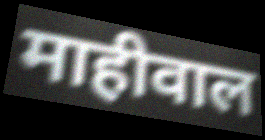
माहीवाल